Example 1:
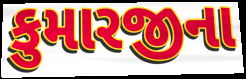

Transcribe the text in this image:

કુમારજીના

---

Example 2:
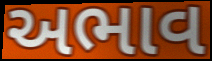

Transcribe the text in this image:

અભાવ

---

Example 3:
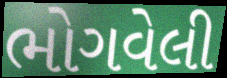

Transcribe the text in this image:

ભોગવેલી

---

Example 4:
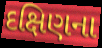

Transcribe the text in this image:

દક્ષિણના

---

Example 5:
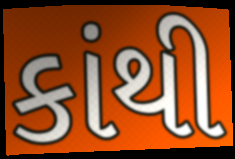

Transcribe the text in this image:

કાંથી